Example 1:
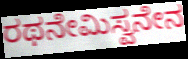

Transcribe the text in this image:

ರಥನೇಮಿಸ್ವನೇನ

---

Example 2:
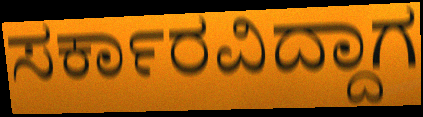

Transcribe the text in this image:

ಸರ್ಕಾರವಿದ್ದಾಗ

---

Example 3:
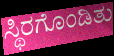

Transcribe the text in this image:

ಸ್ಥಿರಗೊಂಡಿತು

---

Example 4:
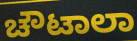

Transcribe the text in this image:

ಚೌಟಾಲಾ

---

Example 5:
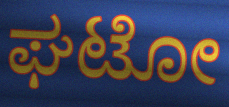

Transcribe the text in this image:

ಘಟೋ